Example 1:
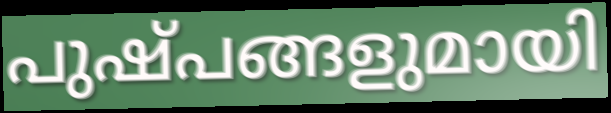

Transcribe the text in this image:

പുഷ്പങ്ങളുമായി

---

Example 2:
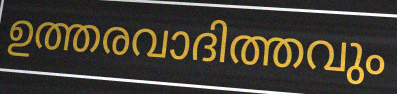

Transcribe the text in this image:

ഉത്തരവാദിത്തവും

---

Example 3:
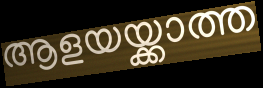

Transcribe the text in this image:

ആളയയ്ക്കാത്ത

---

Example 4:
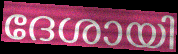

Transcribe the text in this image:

ദേശായി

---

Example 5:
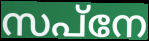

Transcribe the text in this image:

സപ്നേ